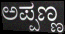
ಅಪ್ಪಣ್ಣ